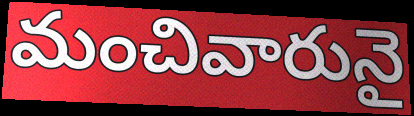
మంచివారునై